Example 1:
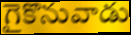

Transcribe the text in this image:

గైకొనువాడు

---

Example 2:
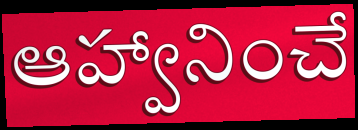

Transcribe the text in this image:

ఆహ్వానించే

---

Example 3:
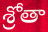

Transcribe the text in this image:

శ్రోతా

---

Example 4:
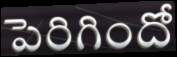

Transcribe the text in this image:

పెరిగిందో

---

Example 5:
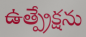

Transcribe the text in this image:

ఉత్ప్రేక్షను